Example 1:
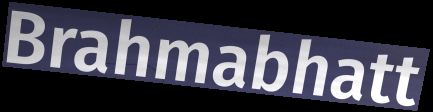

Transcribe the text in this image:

Brahmabhatt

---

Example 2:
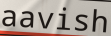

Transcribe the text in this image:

aavish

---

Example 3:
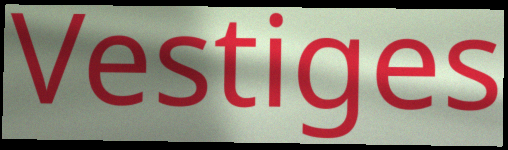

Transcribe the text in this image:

Vestiges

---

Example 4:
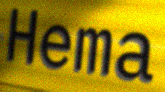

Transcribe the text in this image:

Hema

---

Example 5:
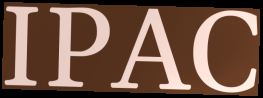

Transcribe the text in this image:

IPAC